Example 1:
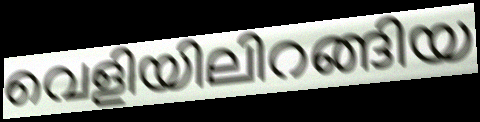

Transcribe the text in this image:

വെളിയിലിറങ്ങിയ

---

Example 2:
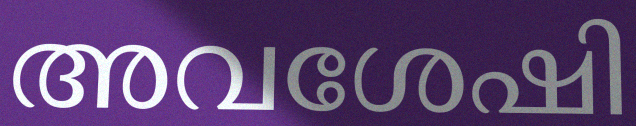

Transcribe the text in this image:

അവശേഷി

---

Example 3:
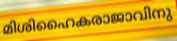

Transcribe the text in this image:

മിശിഹൈകരാജാവിനു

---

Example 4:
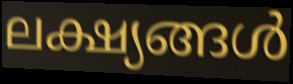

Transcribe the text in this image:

ലക്ഷ്യങ്ങൾ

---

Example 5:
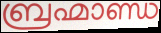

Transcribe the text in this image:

ബ്രഹ്മാണ്ഡ